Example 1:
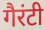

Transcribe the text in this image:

गैरंटी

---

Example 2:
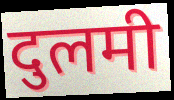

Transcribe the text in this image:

दुलमी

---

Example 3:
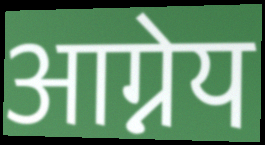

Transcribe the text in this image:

आग्नेय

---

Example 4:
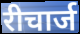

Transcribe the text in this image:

रीचार्ज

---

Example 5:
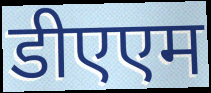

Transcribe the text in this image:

डीएएम